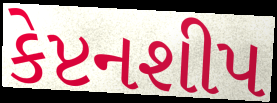
કેપ્ટનશીપ